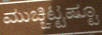
ಮುಚ್ಚಿಟ್ಟಷ್ಟೂ